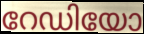
റേഡിയോ